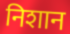
निशान